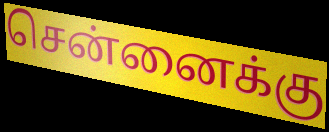
சென்னைக்கு